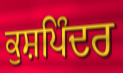
ਕੁਸ਼ਪਿੰਦਰ